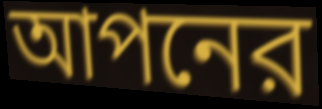
আপনের